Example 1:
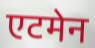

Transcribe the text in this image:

एटमेन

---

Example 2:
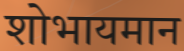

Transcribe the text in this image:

शोभायमान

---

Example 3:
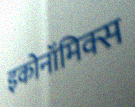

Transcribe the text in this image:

इकोनॉमिक्स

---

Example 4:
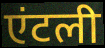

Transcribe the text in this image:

एंटली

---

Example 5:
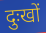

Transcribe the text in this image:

दुःखों